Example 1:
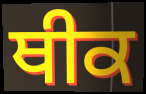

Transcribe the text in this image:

ਥੀਕ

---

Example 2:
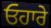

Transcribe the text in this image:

ਓਹਾਰੇ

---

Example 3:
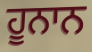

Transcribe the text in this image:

ਹੂਨਾਨ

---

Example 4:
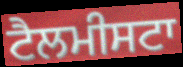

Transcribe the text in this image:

ਟੈਲਮੀਸਟਾ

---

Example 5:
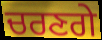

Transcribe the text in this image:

ਚਰਣਗੇ